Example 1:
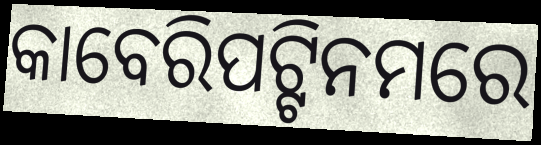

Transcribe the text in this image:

କାବେରିପଟ୍ଟିନମରେ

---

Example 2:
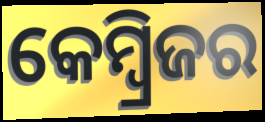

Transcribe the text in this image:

କେମ୍ୱ୍ରିଜର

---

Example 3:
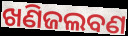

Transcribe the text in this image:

ଖଣିଜଲବଣ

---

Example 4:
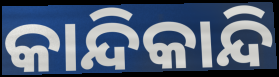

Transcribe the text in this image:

କାନ୍ଦିକାନ୍ଦି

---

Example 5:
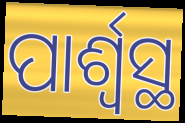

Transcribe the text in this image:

ପାର୍ଶ୍ୱସ୍ଥ